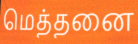
மெத்தனை